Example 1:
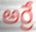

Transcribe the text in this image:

అర్రే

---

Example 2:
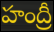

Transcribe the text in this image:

హంద్రీ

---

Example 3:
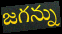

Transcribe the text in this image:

జగన్ను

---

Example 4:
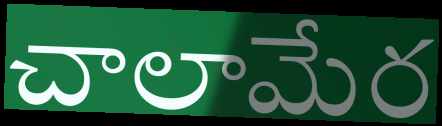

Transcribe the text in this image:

చాలామేర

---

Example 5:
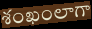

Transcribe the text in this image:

శంఖంలాగా